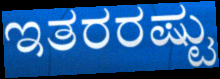
ಇತರರಷ್ಟು